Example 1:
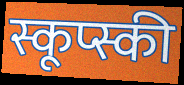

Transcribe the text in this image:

स्कूप्स्की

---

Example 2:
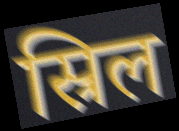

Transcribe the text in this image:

स्रिल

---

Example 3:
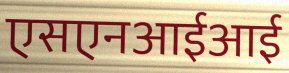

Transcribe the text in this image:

एसएनआईआई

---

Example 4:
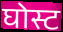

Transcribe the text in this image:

घोस्ट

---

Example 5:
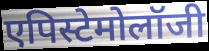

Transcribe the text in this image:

एपिस्टेमोलॉजी